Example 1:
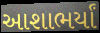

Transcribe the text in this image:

આશાભર્યાં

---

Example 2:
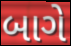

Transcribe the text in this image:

બાગે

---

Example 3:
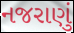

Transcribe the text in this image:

નજરાણું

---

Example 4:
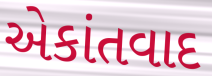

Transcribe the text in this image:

એકાંતવાદ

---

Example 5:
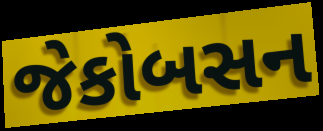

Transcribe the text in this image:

જેકોબસન